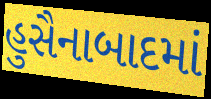
હુસૈનાબાદમાં